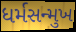
ધર્મસન્મુખ